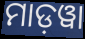
ମାଡ଼ୱା